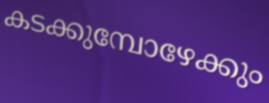
കടക്കുമ്പോഴേക്കും